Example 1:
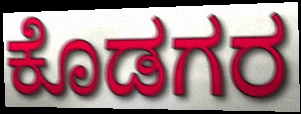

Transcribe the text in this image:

ಕೊಡಗರ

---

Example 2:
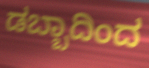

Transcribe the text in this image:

ಡಬ್ಬಾದಿಂದ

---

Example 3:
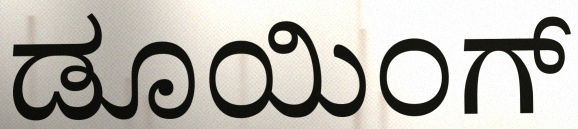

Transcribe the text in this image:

ಡೂಯಿಂಗ್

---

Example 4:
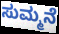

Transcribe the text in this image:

ಸುಮ್ಮನೆ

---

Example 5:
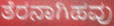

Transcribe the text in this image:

ತೆರನಾಗಿಹವು